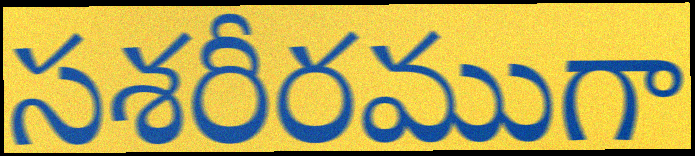
సశరీరముగా